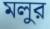
মলুর